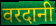
वरदानी